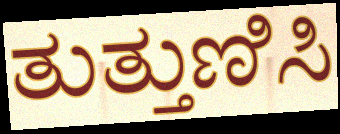
ತುತ್ತುಣಿಸಿ